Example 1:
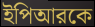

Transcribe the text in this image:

ইপিআরকে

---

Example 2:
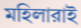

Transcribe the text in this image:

মহিলারাই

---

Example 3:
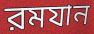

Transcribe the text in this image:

রমযান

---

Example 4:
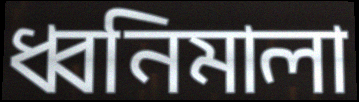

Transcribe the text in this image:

ধ্বনিমালা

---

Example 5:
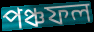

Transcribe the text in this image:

পঞ্চফল